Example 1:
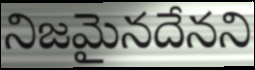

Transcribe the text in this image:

నిజమైనదేనని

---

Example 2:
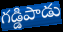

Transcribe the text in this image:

గడ్డిపాడు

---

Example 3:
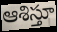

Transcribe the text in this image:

ఆశిస్తూ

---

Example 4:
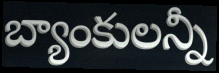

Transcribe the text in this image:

బ్యాంకులన్నీ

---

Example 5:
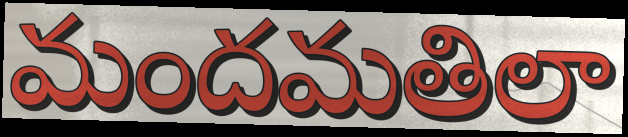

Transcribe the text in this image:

మందమతిలా